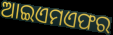
ଆଇଏମଏଫର